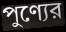
পুণ্যের